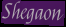
Shegaon